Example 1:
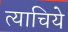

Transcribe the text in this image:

त्याचिये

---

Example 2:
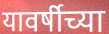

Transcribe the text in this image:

यावर्षीच्या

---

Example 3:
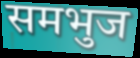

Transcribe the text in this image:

समभुज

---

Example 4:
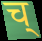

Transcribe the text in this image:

च्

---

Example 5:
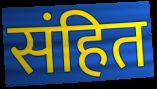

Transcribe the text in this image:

संहित